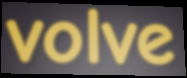
volve